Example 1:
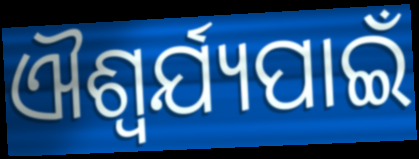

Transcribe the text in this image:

ଐଶ୍ୱର୍ଯ୍ୟପାଇଁ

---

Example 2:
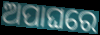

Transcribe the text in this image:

ଅପାଘରେ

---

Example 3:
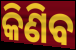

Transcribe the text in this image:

କିଣିବ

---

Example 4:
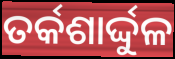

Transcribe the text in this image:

ତର୍କଶାର୍ଦ୍ଦୁଳ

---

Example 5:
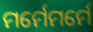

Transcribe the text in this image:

ମର୍ମେମର୍ମେ